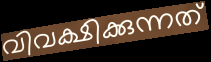
വിവക്ഷിക്കുന്നത്